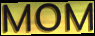
MOM